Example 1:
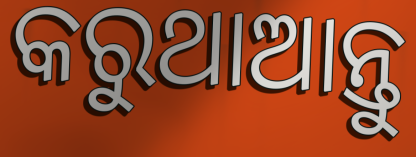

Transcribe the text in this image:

କରୁଥାଆନ୍ତୁ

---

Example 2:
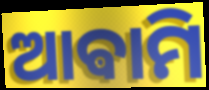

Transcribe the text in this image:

ଆଵାମି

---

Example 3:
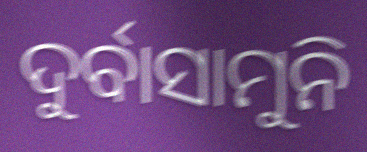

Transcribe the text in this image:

ଦୁର୍ବାସାମୁନି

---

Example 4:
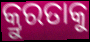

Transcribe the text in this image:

କ୍ରୁରତାକୁ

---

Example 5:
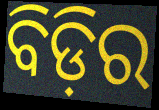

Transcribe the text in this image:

ବିଡ଼ିର